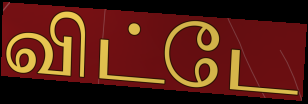
விட்டே